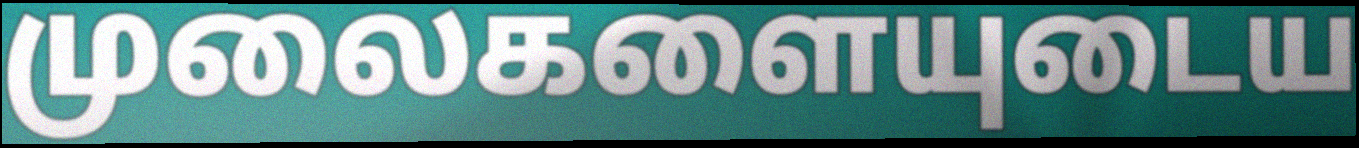
முலைகளையுடைய